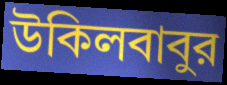
উকিলবাবুর